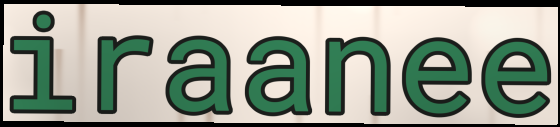
iraanee